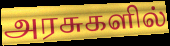
அரசுகளில்